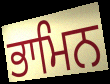
ਭਾਮਿਨ